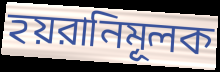
হয়রানিমূলক